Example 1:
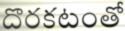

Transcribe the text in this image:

దొరకటంతో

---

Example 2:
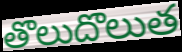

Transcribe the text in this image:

తొలుదొలుత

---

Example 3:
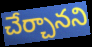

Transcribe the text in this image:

చేర్చానని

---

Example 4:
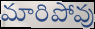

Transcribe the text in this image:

మారిపోవు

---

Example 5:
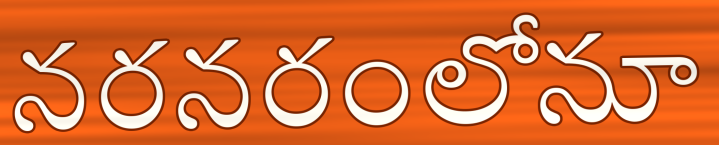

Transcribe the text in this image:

నరనరంలోనూ